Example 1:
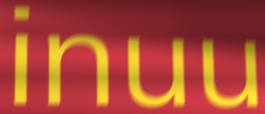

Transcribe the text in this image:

inuu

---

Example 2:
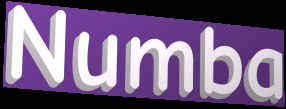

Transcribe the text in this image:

Numba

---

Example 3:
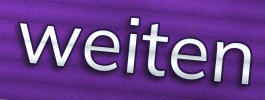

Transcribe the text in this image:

weiten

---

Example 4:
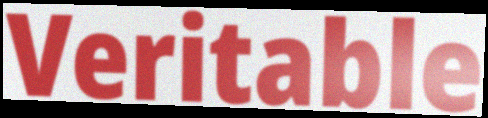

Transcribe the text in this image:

Veritable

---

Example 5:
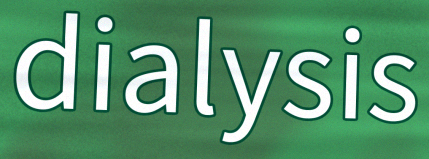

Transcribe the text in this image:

dialysis